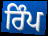
ਰਿੰਪ